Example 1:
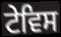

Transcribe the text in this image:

ਟੇਵਿਸ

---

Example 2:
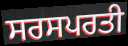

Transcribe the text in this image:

ਸਰਸਪਰਤੀ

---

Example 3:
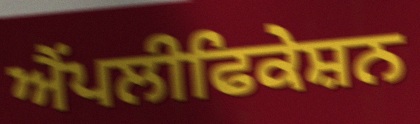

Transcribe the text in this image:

ਐਂਪਲੀਫਿਕੇਸ਼ਨ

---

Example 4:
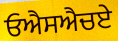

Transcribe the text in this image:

ਓਐਸਐਚਏ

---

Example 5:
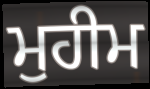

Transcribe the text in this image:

ਮੁਹੀਮ